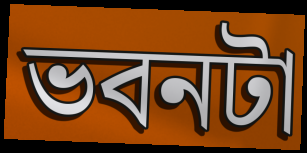
ভবনটা